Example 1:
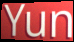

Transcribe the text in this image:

Yun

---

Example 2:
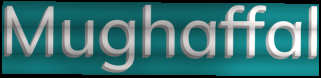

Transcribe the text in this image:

Mughaffal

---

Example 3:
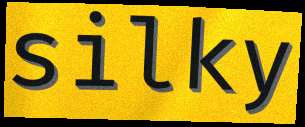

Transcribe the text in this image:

silky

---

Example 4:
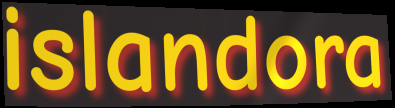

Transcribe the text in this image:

islandora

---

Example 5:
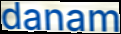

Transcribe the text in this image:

danam